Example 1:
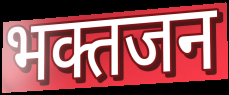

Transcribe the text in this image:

भक्तजन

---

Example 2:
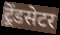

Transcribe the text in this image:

ट्रेंडसेटर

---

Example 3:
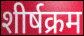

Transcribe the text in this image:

शीर्षक्रम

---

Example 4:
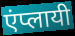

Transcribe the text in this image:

एंप्लायी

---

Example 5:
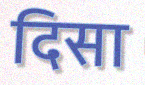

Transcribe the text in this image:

दिसा